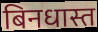
बिनधास्त